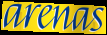
arenas